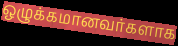
ஒழுக்கமானவர்களாக